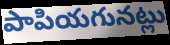
పాపియగునట్లు